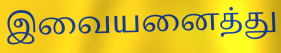
இவையனைத்து